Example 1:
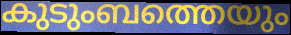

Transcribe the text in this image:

കുടുംബത്തെയും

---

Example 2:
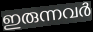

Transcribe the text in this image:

ഇരുന്നവർ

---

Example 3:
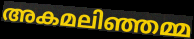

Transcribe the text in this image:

അകമലിഞ്ഞമ്മ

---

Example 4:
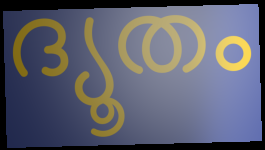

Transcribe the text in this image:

ദ്യൂതം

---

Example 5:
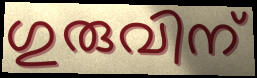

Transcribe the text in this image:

ഗുരുവിന്